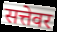
सत्तेवर